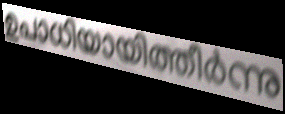
ഉപാധിയായിത്തീർന്നു